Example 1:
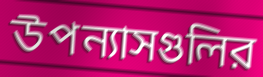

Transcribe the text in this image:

উপন্যাসগুলির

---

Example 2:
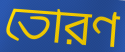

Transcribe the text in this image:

তোরণ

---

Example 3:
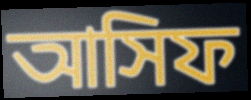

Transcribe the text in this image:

আসিফ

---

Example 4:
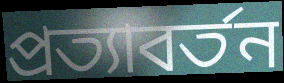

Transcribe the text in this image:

প্রত্যাবর্তন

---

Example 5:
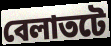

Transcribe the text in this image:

বেলাতটে